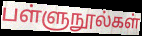
பள்ளுநூல்கள்